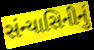
સંન્યાસિનીનું